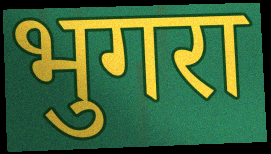
भुगरा